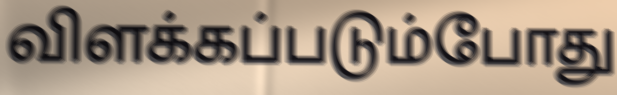
விளக்கப்படும்போது